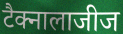
टैक्नालाजीज